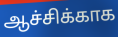
ஆச்சிக்காக